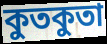
কুতকুতা